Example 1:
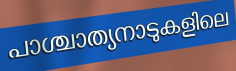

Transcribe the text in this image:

പാശ്ചാത്യനാടുകളിലെ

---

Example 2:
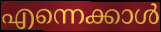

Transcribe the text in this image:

എന്നെക്കാൾ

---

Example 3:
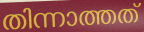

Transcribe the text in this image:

തിന്നാത്തത്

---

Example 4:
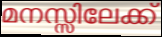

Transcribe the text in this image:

മനസ്സിലേക്ക്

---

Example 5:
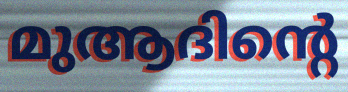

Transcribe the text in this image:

മുആദിന്റെ